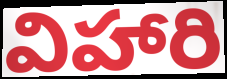
విహారి